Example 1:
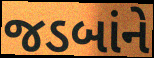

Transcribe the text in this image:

જડબાંને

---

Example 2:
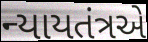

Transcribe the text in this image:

ન્યાયતંત્રએ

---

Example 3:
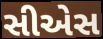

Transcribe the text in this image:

સીએસ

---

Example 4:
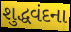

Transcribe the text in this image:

શુદ્ધવંદના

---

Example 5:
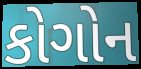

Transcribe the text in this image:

કોગોન